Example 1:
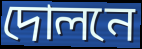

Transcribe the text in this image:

দোলনে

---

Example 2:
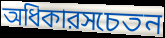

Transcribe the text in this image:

অধিকারসচেতন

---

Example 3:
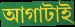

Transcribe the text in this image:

আগাটাই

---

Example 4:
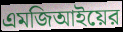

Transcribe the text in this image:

এমজিআইয়ের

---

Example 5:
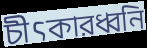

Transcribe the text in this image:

চীৎকারধ্বনি